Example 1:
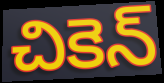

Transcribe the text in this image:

చికెన్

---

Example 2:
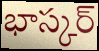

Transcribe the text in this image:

భాస్కర్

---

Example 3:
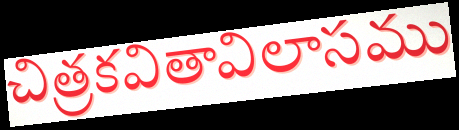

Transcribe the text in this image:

చిత్రకవితావిలాసము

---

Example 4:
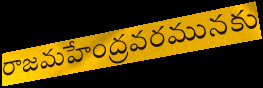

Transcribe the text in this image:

రాజమహేంద్రవరమునకు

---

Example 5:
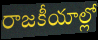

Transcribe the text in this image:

రాజకీయాల్లో